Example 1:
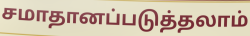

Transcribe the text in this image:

சமாதானப்படுத்தலாம்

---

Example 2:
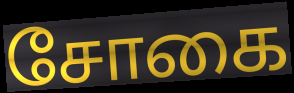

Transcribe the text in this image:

சோகை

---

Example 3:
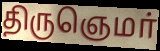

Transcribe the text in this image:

திருஞெமர்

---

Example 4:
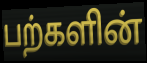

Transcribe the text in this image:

பற்களின்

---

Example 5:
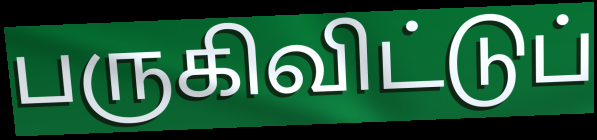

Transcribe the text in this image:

பருகிவிட்டுப்